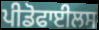
ਪੀਡੋਫਾਈਲਸ